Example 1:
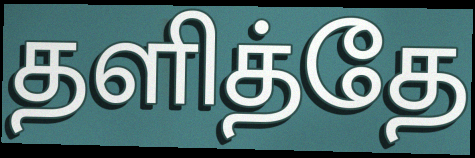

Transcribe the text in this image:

தளித்தே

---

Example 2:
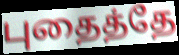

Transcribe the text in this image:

புதைத்தே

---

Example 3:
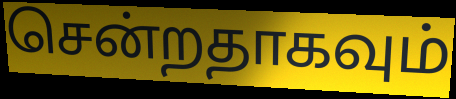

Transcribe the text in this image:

சென்றதாகவும்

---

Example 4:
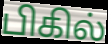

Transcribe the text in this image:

பிகில்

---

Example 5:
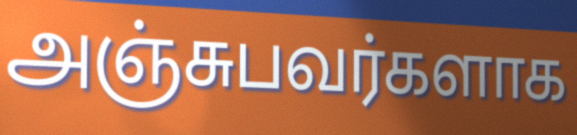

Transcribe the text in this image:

அஞ்சுபவர்களாக